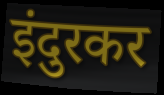
इंदुरकर